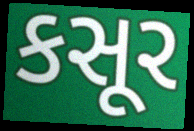
કસૂર